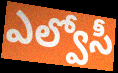
ఎల్వోసీ